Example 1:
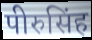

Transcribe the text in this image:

पीरुसिंह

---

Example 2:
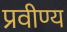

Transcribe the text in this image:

प्रवीण्य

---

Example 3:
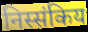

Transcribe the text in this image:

निस्संकिय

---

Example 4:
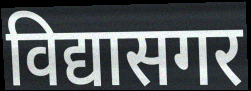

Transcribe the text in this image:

विद्यासगर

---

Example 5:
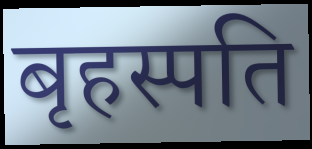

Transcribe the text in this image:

बृहस्पति